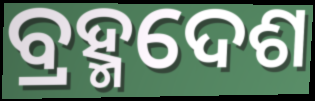
ବ୍ରହ୍ମଦେଶ